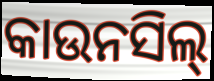
କାଉନସିଲ୍